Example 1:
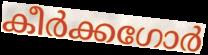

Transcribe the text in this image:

കീർക്കഗോർ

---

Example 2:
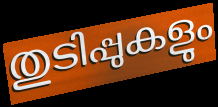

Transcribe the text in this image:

തുടിപ്പുകളും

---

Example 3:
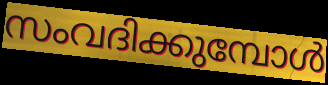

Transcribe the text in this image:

സംവദിക്കുമ്പോൾ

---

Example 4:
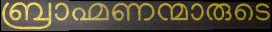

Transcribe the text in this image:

ബ്രാഹ്മണന്മാരുടെ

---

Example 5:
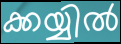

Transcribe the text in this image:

ക്കയ്യിൽ